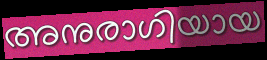
അനുരാഗിയായ